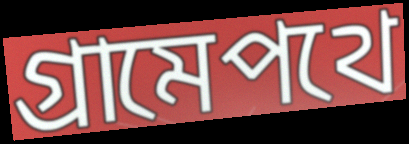
গ্রামেপথে